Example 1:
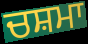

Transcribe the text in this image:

ਚਸ਼ਮਾ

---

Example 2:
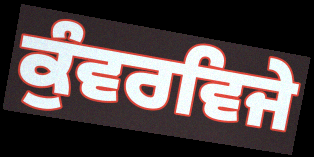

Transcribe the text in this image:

ਕੁੰਵਰਵਿਜੇ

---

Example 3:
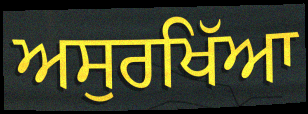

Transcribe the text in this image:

ਅਸੁਰਖਿੱਆ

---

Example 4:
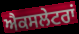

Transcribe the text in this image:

ਐਕਸਲੇਟਰਾਂ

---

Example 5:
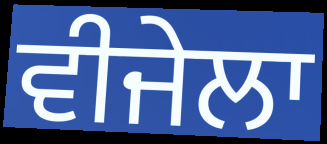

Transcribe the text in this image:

ਵੀਜੇਲਾ